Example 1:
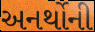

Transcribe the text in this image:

અનર્થોની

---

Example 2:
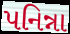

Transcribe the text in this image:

પનિન્ના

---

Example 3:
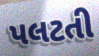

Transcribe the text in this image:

પલટતી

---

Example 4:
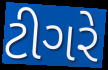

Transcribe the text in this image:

ટીગરે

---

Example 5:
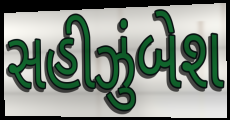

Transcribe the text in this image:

સહીઝુંબેશ